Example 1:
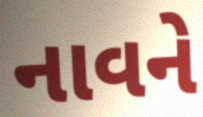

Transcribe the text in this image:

નાવને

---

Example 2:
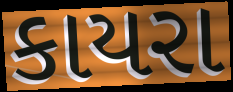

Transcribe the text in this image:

કાયરા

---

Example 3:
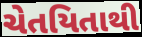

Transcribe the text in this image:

ચેતયિતાથી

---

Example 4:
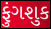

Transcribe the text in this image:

ફુંગશુક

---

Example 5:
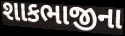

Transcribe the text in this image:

શાકભાજીના